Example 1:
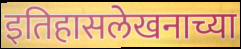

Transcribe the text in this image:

इतिहासलेखनाच्या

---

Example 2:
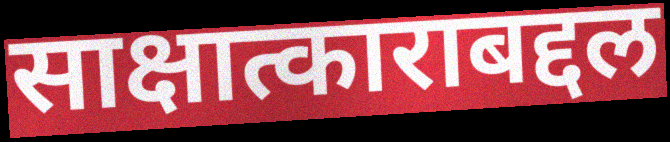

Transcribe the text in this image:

साक्षात्काराबद्दल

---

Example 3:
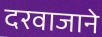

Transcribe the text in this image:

दरवाजाने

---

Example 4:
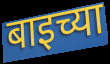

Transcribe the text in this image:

बाइच्या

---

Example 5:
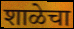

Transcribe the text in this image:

शाळेचा